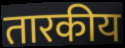
तारकीय